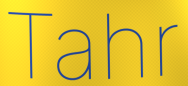
Tahr